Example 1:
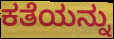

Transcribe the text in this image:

ಕತೆಯನ್ನು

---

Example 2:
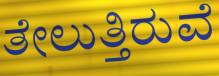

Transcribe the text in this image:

ತೇಲುತ್ತಿರುವೆ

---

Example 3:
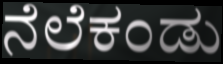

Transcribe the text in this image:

ನೆಲೆಕಂಡು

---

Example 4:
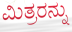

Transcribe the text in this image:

ಮಿತ್ರರನ್ನು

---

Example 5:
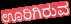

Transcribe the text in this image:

ಊರಿಗಿರುವ